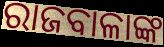
ରାଜବାଳାଙ୍କ